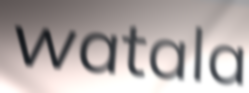
watala